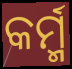
କର୍ମ୍ମ